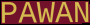
PAWAN